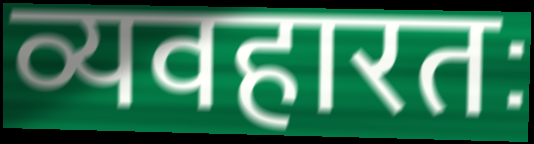
व्यवहारतः